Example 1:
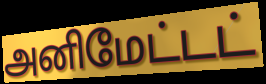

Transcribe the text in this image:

அனிமேட்டட்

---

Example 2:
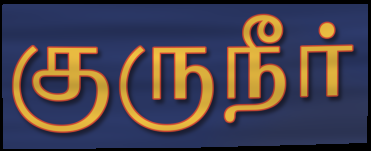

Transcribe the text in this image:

குருநீர்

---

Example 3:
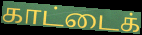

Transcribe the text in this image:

காட்டைக்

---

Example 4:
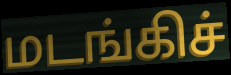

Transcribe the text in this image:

மடங்கிச்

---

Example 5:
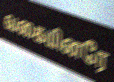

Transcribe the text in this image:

வகையினரே